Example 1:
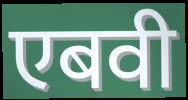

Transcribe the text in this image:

एबवी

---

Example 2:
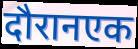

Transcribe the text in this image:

दौरानएक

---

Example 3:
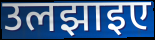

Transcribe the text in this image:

उलझाइए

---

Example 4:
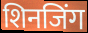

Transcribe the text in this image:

शिनजिंग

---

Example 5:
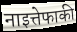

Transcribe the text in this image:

नाइत्तेफाकी